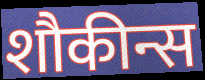
शौकीन्स